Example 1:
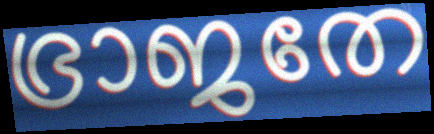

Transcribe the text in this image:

ഭ്രാജതേ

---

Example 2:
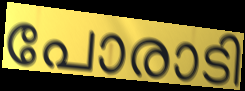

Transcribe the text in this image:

പോരാടി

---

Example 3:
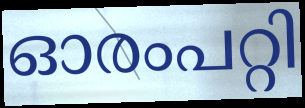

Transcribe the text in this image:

ഓരംപറ്റി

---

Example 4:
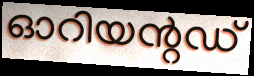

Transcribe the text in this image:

ഓറിയന്റഡ്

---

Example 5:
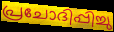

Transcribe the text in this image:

പ്രചോദിപ്പിച്ചു